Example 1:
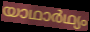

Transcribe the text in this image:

യാഥാർഥ്യം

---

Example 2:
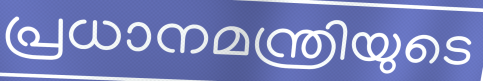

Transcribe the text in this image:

പ്രധാനമന്ത്രിയുടെ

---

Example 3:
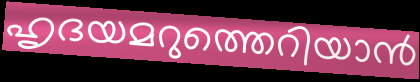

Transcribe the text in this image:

ഹൃദയമറുത്തെറിയാൻ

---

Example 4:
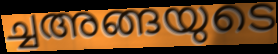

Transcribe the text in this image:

ച്ചഅങ്ങയുടെ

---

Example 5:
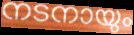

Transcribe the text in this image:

നടനായും